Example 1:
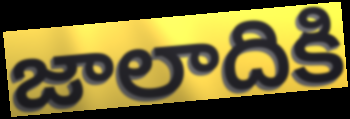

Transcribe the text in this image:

జాలాదికి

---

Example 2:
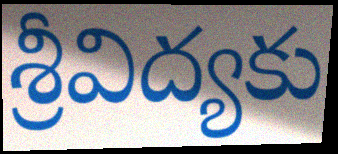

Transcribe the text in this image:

శ్రీవిద్యకు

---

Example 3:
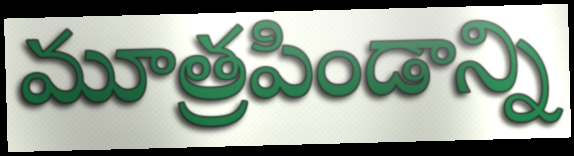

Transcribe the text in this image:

మూత్రపిండాన్ని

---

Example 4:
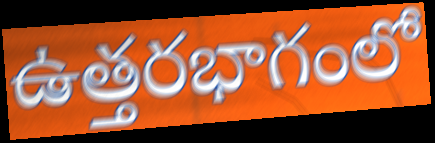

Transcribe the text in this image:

ఉత్తరభాగంలో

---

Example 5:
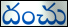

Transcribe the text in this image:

దంచు